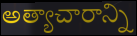
అత్యాచారాన్ని